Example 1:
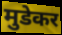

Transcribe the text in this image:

मुडेकर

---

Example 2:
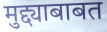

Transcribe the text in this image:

मुद्द्याबाबत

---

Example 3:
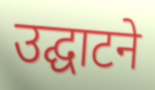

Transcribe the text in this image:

उद्घाटने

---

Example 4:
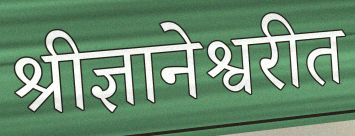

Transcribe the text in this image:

श्रीज्ञानेश्वरीत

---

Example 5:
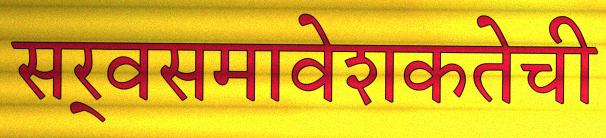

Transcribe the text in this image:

सर्वसमावेशकतेची